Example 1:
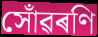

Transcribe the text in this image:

সোঁৱৰণি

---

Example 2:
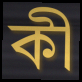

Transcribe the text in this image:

কী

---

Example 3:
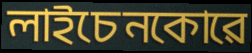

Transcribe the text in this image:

লাইচেনকোৱে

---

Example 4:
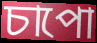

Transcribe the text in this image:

চাপো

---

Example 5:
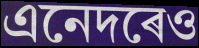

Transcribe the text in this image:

এনেদৰেও